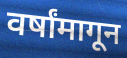
वर्षांमागून